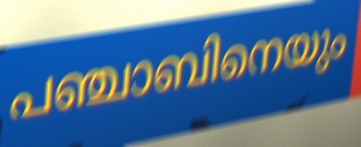
പഞ്ചാബിനെയും